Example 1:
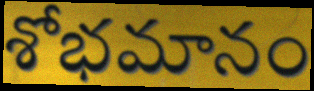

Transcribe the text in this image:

శోభమానం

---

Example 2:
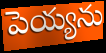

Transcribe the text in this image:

పెయ్యను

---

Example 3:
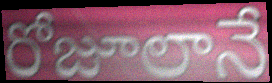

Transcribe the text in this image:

రోజూలానే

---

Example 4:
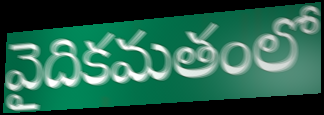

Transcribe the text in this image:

వైదికమతంలో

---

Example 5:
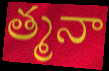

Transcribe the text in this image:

త్మనా